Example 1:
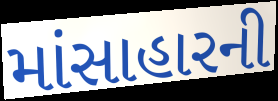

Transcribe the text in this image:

માંસાહારની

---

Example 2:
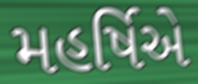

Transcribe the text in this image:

મહર્ષિએ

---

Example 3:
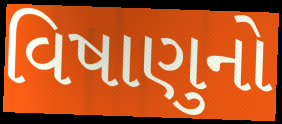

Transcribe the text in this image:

વિષાણુનો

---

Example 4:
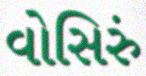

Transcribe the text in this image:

વોસિરું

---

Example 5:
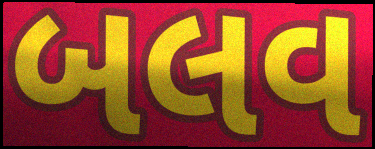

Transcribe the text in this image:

બલવ